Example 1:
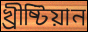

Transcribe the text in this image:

খ্ৰীষ্টিয়ান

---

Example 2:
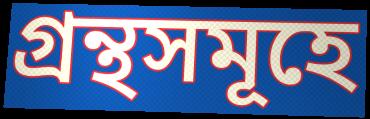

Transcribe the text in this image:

গ্ৰন্থসমূহে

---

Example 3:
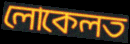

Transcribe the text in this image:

লোকেলত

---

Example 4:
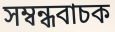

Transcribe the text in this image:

সম্বন্ধবাচক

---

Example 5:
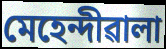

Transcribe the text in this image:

মেহেন্দীৱালা